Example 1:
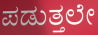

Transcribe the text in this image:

ಪಡುತ್ತಲೇ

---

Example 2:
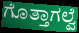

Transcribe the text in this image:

ಗೊತ್ತಾಗಲ್ವೆ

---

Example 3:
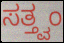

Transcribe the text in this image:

ಸತ್ತ್ವಂ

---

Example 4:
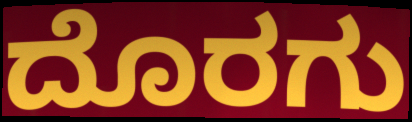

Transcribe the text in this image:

ದೊರಗು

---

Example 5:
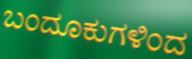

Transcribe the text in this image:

ಬಂದೂಕುಗಳಿಂದ